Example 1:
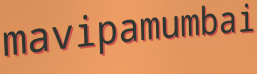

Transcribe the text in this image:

mavipamumbai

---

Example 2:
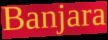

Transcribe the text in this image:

Banjara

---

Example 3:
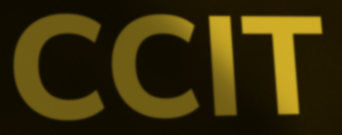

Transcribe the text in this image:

CCIT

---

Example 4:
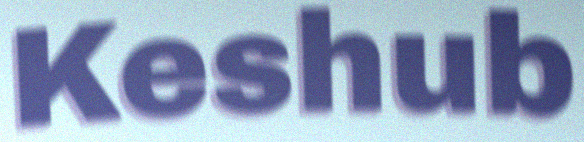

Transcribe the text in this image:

Keshub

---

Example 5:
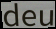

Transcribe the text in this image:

deu